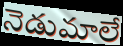
నెడుమాలే